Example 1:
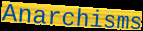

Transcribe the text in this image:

Anarchisms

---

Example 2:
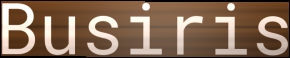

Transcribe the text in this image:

Busiris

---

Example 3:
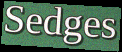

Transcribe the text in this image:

Sedges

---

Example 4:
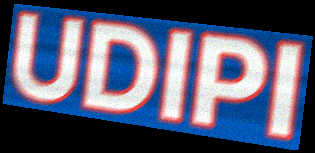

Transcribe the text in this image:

UDIPI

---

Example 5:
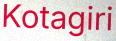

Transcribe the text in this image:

Kotagiri